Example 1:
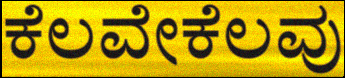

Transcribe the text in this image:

ಕೆಲವೇಕೆಲವು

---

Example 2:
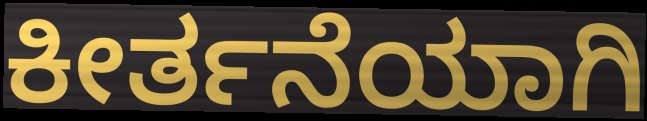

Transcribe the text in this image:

ಕೀರ್ತನೆಯಾಗಿ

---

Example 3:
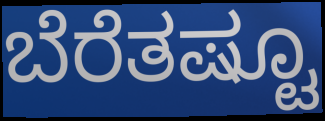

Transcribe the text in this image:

ಬೆರೆತಷ್ಟೂ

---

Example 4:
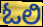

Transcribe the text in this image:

ಓಲಿ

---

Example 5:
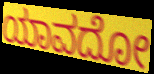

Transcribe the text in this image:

ಯಾವದೋ